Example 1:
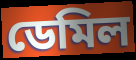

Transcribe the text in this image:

ডেমিল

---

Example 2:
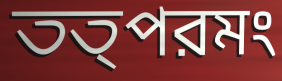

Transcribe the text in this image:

তত্পরমং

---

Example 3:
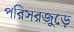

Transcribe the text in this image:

পরিসরজুড়ে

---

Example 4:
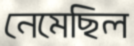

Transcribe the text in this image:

নেমেছিল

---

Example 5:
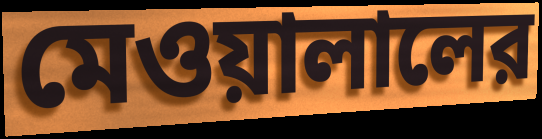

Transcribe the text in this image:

মেওয়ালালের